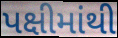
પક્ષીમાંથી